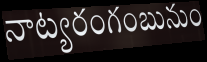
నాట్యరంగంబునుం